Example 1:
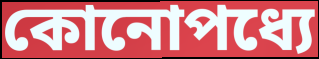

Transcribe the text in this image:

কোনোপধ্যে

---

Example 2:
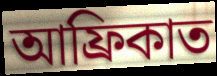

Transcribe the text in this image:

আফ্ৰিকাত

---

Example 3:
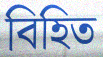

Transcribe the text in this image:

বিহিত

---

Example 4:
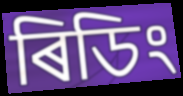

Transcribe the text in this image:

ৰিডিং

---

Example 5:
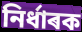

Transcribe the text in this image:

নিৰ্ধাৰক